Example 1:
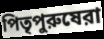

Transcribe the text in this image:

পিতৃপুরুষেরা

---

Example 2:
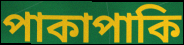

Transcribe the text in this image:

পাকাপাকি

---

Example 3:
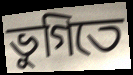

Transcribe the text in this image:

ভুগিতে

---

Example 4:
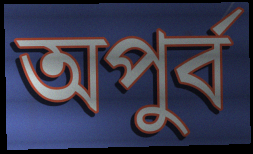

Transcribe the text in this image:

অপুর্ব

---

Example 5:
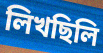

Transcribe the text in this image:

লিখছিলি